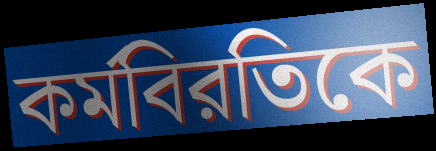
কর্মবিরতিকে